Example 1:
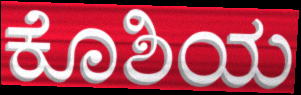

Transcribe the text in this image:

ಕೊಶಿಯ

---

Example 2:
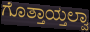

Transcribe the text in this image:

ಗೊತ್ತಾಯ್ತಲ್ವಾ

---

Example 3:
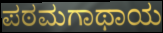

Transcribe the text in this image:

ಪಠಮಗಾಥಾಯ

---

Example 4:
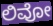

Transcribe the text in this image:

ಲಿವೋ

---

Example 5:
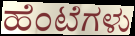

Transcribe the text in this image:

ಹೆಂಟೆಗಳು